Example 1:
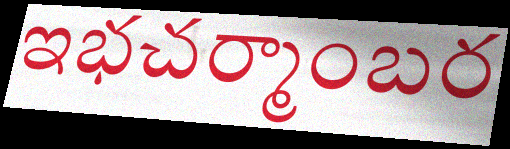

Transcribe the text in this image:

ఇభచర్మాంబర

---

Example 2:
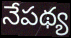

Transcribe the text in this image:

నేపథ్య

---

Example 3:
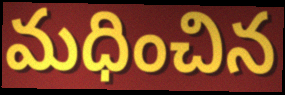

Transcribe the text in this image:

మధించిన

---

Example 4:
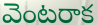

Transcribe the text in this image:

వెంటరాక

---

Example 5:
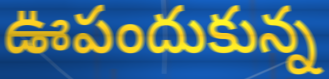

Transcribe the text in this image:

ఊపందుకున్న